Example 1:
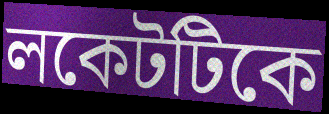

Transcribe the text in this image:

লকেটটিকে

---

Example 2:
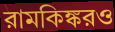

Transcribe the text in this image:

রামকিঙ্করও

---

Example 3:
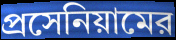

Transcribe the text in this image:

প্রসেনিয়ামের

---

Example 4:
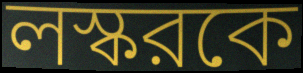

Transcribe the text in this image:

লস্করকে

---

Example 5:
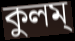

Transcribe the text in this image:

কুলম্